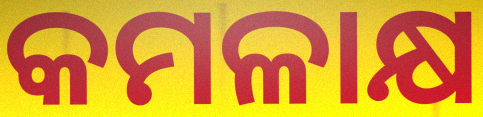
କମଳାକ୍ଷ